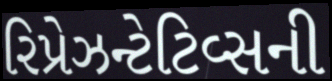
રિપ્રેઝન્ટેટિવ્સની